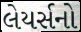
લેયર્સનો